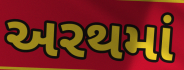
અરથમાં